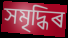
সমৃদ্ধিৰ